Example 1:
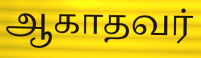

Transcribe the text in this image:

ஆகாதவர்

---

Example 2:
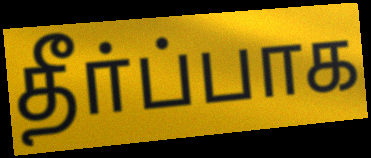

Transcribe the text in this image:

தீர்ப்பாக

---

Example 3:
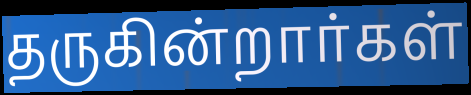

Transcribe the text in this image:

தருகின்றார்கள்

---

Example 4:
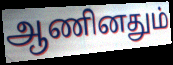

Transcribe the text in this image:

ஆணினதும்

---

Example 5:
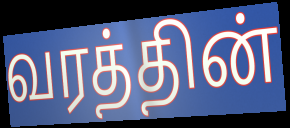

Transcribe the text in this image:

வரத்தின்